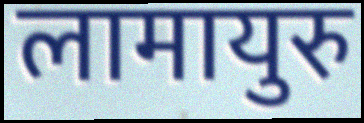
लामायुरु